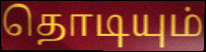
தொடியும்